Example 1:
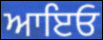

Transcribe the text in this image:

ਆਇਓ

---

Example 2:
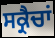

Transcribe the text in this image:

ਸਕ੍ਰੈਚਾਂ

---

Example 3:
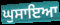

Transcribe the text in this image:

ਘੁਸਾਇਆ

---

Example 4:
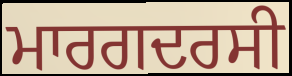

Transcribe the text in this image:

ਮਾਰਗਦਰਸੀ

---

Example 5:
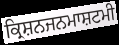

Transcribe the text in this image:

ਕ੍ਰਿਸ਼ਨਜਨਮਾਸ਼ਟਮੀ